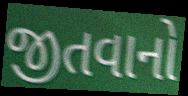
જીતવાનો